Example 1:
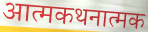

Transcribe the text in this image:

आत्मकथनात्मक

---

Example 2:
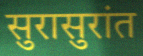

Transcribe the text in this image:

सुरासुरांत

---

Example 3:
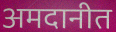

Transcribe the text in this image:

अमदानीत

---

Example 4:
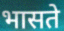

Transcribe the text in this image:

भासते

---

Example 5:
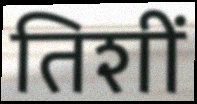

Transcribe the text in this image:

तिशीं